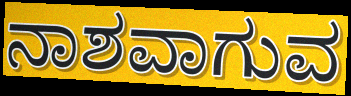
ನಾಶವಾಗುವ